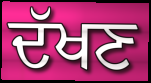
ਦੱਖਣ